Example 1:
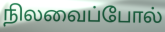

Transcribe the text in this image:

நிலவைப்போல்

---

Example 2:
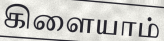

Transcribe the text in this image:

கிளையாம்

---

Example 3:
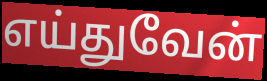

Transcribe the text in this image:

எய்துவேன்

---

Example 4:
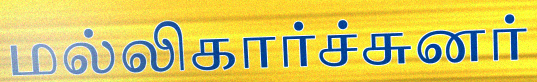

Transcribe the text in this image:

மல்லிகார்ச்சுனர்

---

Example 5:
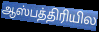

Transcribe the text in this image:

ஆஸ்பத்திரியில